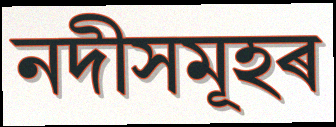
নদীসমূহৰ